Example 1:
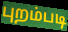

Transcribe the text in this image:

புறம்படி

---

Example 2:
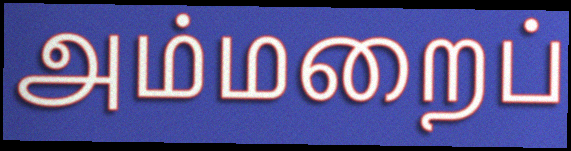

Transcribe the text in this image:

அம்மறைப்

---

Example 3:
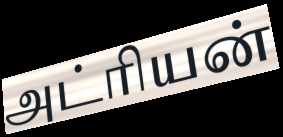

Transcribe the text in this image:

அட்ரியன்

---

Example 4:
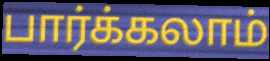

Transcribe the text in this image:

பார்க்கலாம்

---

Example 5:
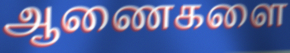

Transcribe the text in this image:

ஆணைகளை